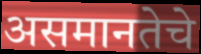
असमानतेचे